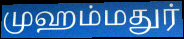
முஹம்மதுர்